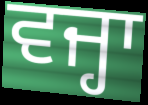
ਵਜ੍ਹਾ